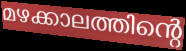
മഴക്കാലത്തിന്റെ